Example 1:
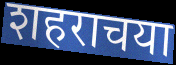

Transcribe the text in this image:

शहराचया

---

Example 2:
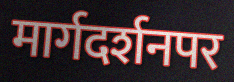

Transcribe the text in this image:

मार्गदर्शनपर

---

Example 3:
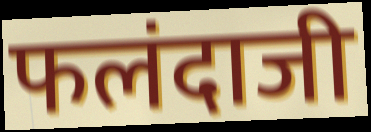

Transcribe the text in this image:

फलंदाजी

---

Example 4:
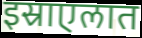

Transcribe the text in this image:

इस्राएलात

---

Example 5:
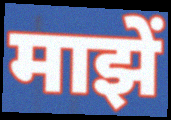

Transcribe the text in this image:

माझें